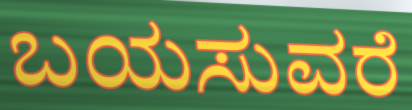
ಬಯಸುವರೆ